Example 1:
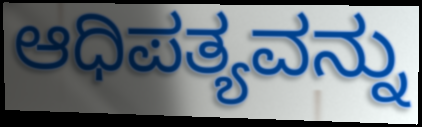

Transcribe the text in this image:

ಆಧಿಪತ್ಯವನ್ನು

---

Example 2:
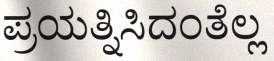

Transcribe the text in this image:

ಪ್ರಯತ್ನಿಸಿದಂತೆಲ್ಲ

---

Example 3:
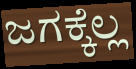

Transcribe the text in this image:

ಜಗಕ್ಕೆಲ್ಲ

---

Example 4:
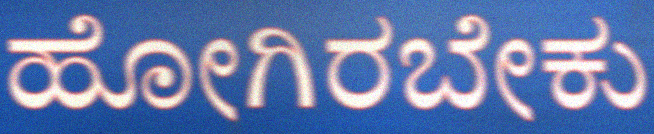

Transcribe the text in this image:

ಹೋಗಿರಬೇಕು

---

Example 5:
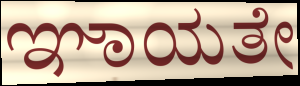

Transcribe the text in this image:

ಞಾಯತೇ